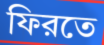
ফিরতে